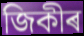
জিকীৰ